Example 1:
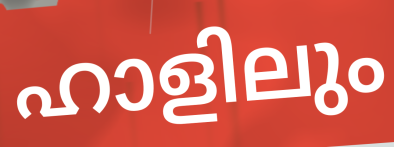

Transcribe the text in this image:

ഹാളിലും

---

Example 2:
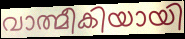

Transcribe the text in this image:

വാത്മീകിയായി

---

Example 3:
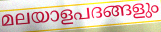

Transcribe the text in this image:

മലയാളപദങ്ങളും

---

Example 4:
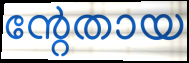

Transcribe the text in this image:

ന്റേതായ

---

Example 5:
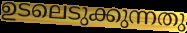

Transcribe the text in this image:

ഉടലെടുക്കുന്നതു